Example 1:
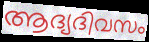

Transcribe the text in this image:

ആദ്യദിവസം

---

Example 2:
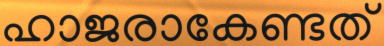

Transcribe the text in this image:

ഹാജരാകേണ്ടത്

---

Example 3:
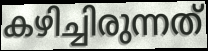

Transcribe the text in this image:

കഴിച്ചിരുന്നത്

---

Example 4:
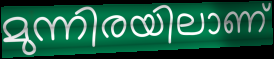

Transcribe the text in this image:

മുന്നിരയിലാണ്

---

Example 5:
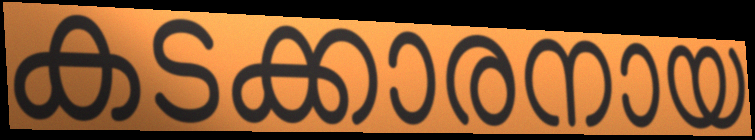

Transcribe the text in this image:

കടക്കാരനായ